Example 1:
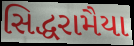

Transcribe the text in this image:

સિદ્ધરામૈયા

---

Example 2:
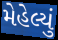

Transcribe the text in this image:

મેહેલ્યું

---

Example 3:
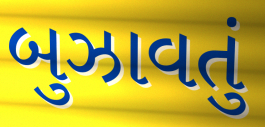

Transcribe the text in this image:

બુઝાવતું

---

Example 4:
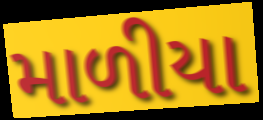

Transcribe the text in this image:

માળીયા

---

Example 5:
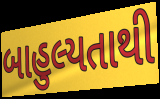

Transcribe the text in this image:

બાહુલ્યતાથી